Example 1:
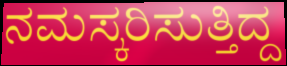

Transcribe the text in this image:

ನಮಸ್ಕರಿಸುತ್ತಿದ್ದ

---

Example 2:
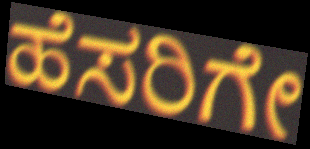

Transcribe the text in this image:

ಹೆಸರಿಗೇ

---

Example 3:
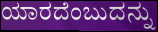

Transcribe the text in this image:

ಯಾರದೆಂಬುದನ್ನು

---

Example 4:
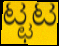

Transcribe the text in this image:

ಟ್ಟಟ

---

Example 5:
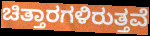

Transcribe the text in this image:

ಚಿತ್ತಾರಗಳಿರುತ್ತವೆ